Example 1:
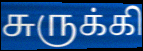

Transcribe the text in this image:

சுருக்கி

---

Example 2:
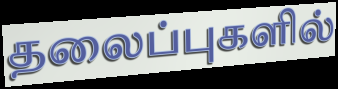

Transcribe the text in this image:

தலைப்புகளில்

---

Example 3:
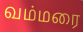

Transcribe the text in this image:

வம்மரை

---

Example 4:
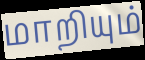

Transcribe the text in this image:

மாறியும்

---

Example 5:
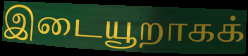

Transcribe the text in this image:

இடையூறாகக்